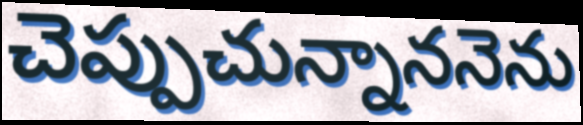
చెప్పుచున్నాననెను